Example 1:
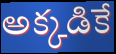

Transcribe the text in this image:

అక్కడికే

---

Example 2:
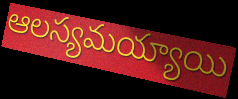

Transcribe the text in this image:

ఆలస్యమయ్యాయి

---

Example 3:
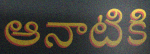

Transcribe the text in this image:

ఆనాటికి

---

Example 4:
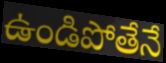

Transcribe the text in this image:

ఉండిపోతేనే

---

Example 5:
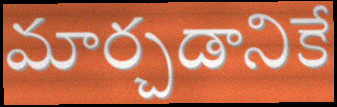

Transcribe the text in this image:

మార్చడానికే